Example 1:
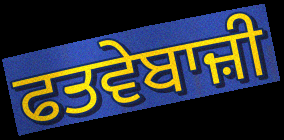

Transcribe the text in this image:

ਫਤਵੇਬਾਜ਼ੀ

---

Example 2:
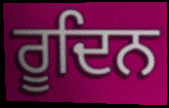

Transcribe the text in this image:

ਰੂਦਿਨ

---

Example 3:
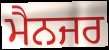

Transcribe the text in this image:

ਮੈਨਜਰ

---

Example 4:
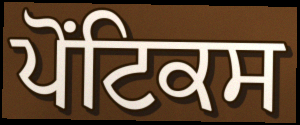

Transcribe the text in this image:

ਪੋਂਟਿਕਸ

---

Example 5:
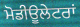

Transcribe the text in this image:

ਮੋਡੀਊਲੇਟਰਾਂ